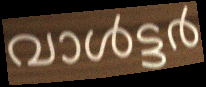
വാൾട്ടർ